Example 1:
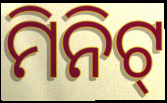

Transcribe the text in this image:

ମିନିଟ୍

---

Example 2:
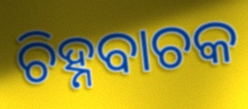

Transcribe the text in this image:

ଚିହ୍ନବାଚକ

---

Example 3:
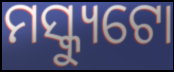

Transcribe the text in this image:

ମସ୍କ୍ୟୁଟୋ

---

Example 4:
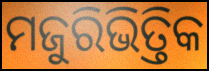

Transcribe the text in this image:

ମଜୁରିଭିତ୍ତିକ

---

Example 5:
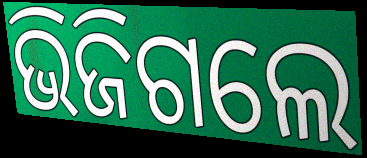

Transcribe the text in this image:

ଭିଜିଗଲେ